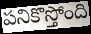
పనికొస్తోంది